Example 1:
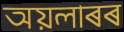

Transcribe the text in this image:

অয়লাৰৰ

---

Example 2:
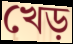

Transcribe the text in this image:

খেড়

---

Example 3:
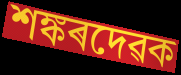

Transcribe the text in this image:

শঙ্কৰদেৱক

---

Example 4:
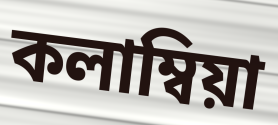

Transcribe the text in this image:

কলাম্বিয়া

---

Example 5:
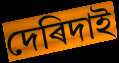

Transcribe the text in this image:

দেৰিদাই